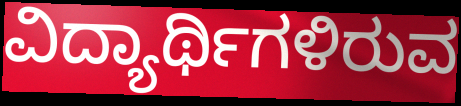
ವಿದ್ಯಾರ್ಥಿಗಳಿರುವ